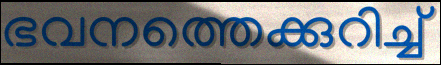
ഭവനത്തെക്കുറിച്ച്